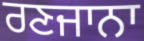
ਰਣਜਾਨਾ